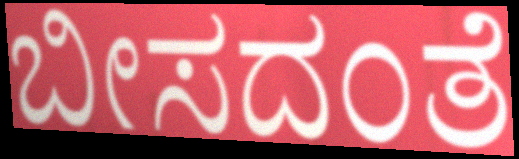
ಬೀಸದಂತೆ